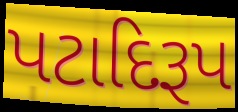
પટાદિરૂપ